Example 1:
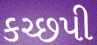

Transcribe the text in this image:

કચ્છપી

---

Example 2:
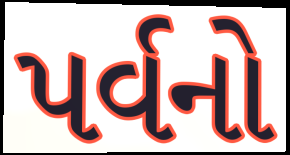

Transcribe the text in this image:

પર્વનો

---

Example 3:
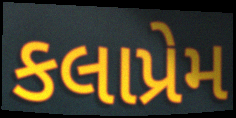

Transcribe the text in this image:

કલાપ્રેમ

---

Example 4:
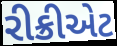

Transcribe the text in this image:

રીક્રીએટ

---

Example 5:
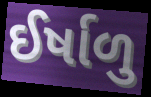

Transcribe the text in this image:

ઈર્ષાળુ